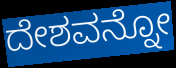
ದೇಶವನ್ನೋ